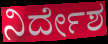
ನಿರ್ದೇಶ